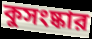
কুসংষ্কার